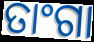
ତାଂଗା